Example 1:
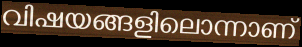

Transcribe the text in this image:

വിഷയങ്ങളിലൊന്നാണ്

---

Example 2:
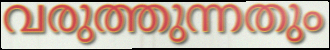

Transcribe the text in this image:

വരുത്തുന്നതും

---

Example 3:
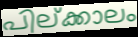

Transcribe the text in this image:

പില്ക്കാലം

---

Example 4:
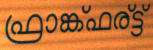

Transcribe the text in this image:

ഫ്രാങ്ക്ഫര്ട്ട്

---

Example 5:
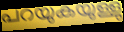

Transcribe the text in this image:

പറയുകയുള്ളു